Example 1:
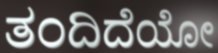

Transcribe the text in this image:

ತಂದಿದೆಯೋ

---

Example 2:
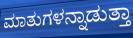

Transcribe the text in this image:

ಮಾತುಗಳನ್ನಾಡುತ್ತಾ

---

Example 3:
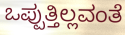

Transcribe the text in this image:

ಒಪ್ಪುತ್ತಿಲ್ಲವಂತೆ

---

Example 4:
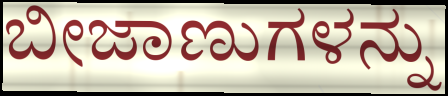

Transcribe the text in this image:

ಬೀಜಾಣುಗಳನ್ನು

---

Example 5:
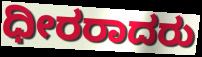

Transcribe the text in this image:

ಧೀರರಾದರು